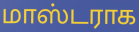
மாஸ்டராக